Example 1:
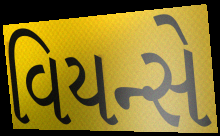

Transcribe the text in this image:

વિયન્સે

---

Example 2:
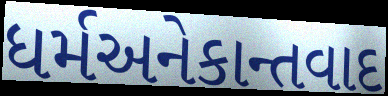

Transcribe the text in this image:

ધર્મઅનેકાન્તવાદ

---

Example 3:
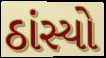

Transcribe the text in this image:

ઠાંસ્યો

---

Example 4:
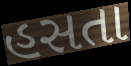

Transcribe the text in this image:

હસતા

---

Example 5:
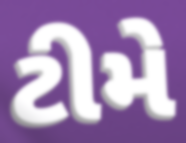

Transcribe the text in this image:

ટીમે